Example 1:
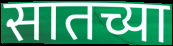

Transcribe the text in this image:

सातच्या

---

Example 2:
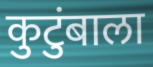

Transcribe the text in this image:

कुटुंबाला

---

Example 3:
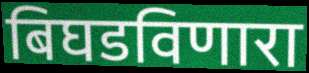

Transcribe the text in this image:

बिघडविणारा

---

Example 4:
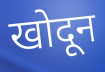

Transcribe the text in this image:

खोदून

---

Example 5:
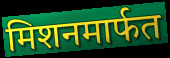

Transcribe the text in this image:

मिशनमार्फत